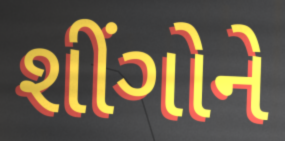
શીંગોને